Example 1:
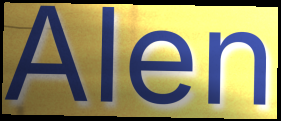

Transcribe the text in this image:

Alen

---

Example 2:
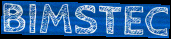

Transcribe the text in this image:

BIMSTEC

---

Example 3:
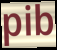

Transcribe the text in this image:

pib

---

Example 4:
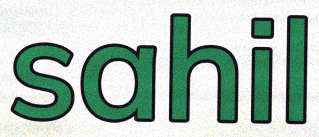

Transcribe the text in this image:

sahil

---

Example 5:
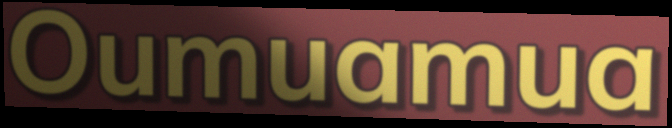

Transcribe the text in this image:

Oumuamua